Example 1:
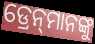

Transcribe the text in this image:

ଡ୍ରେନ୍‌ମାନଙ୍କୁ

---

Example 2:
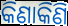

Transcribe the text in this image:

କିଣାକିଣି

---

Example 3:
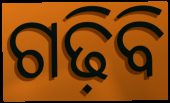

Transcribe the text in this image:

ଗଢ଼ିବି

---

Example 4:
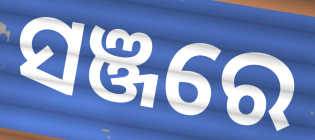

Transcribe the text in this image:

ସଞ୍ଜରେ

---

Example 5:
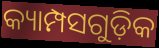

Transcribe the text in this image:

କ୍ୟାମ୍ପସଗୁଡ଼ିକ